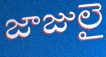
జాజులై